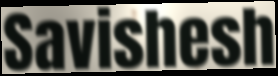
Savishesh